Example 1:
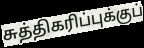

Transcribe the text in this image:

சுத்திகரிப்புக்குப்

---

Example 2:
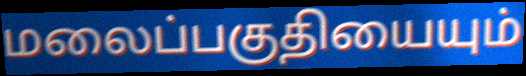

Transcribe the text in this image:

மலைப்பகுதியையும்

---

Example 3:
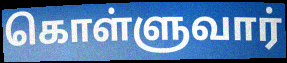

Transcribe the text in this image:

கொள்ளுவார்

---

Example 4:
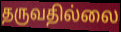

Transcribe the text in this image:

தருவதில்லை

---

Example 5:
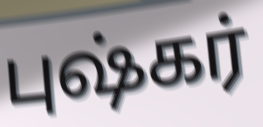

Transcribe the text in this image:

புஷ்கர்